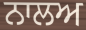
ਨਾਲਅ